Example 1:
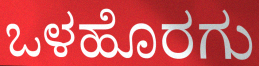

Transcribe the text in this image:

ಒಳಹೊರಗು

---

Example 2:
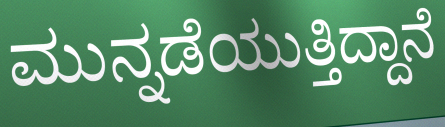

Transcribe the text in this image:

ಮುನ್ನಡೆಯುತ್ತಿದ್ದಾನೆ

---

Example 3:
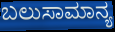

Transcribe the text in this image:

ಬಲುಸಾಮಾನ್ಯ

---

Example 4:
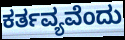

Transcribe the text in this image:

ಕರ್ತವ್ಯವೆಂದು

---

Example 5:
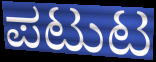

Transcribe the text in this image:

ಪಟುಟ